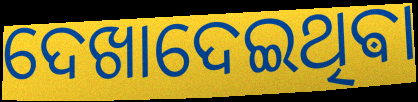
ଦେଖାଦେଇଥିଵା